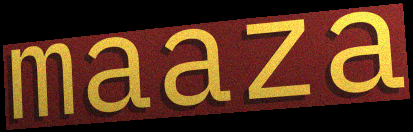
maaza